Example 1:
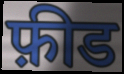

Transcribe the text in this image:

फ़ीड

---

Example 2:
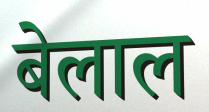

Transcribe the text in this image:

बेलाल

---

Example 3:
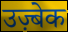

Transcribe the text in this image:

उज़्बेक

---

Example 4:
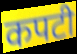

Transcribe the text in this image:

कपटी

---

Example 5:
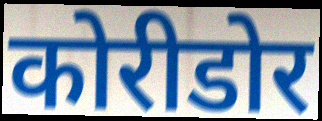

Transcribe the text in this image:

कोरीडोर